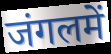
जंगलमें